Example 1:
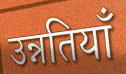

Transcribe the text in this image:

उन्नतियाँ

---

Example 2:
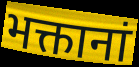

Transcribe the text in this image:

भक्तानां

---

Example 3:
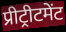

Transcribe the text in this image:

प्रीट्रीटमेंट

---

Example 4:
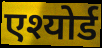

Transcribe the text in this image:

एश्योर्ड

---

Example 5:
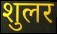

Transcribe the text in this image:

शुलर